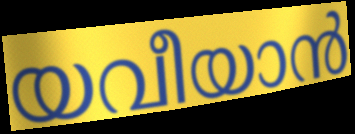
യവീയാൻ